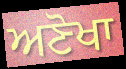
ਅਣੋਖਾ